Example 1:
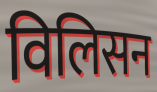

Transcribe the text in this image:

विलिसन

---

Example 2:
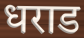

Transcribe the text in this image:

धराड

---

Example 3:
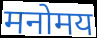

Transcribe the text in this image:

मनोमय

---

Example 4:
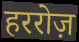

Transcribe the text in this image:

हररोज़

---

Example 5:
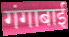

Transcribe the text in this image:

गंगाबाई